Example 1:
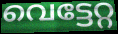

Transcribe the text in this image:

വെട്ടേറ്റ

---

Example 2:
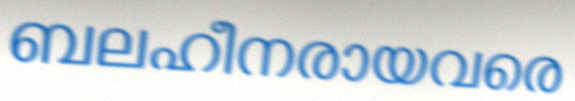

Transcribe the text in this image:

ബലഹീനരായവരെ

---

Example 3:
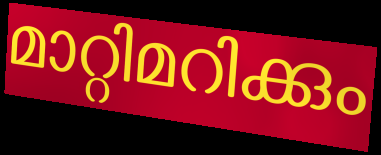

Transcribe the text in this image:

മാറ്റിമറിക്കും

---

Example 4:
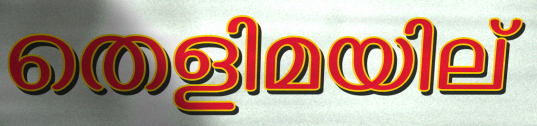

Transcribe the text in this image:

തെളിമയില്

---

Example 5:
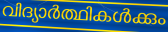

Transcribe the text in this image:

വിദ്യാർത്ഥികൾക്കും